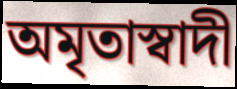
অমৃতাস্বাদী